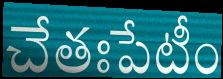
చేతఃపేటీం